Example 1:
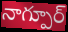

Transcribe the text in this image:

నాగ్పూర్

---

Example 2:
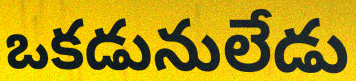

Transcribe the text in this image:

ఒకడునులేడు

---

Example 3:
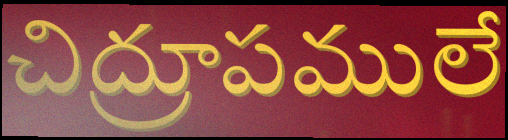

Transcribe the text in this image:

చిద్రూపములే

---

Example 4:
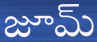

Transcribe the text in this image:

జూమ్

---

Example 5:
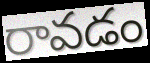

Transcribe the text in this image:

రావడం